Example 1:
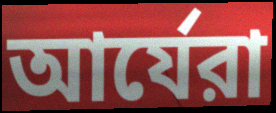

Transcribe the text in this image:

আর্যেরা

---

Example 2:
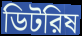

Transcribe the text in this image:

ডিটরিষ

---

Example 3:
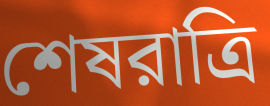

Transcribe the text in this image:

শেষরাত্রি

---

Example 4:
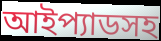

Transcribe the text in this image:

আইপ্যাডসহ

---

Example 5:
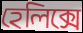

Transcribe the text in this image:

হেলিক্সে